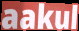
aakul